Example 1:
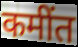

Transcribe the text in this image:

कमींत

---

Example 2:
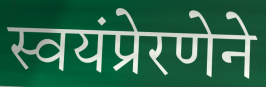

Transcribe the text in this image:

स्वयंप्रेरणेने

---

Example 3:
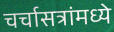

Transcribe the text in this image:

चर्चासत्रांमध्ये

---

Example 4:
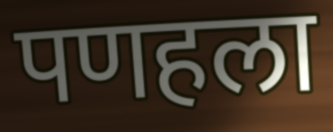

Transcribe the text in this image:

पणहला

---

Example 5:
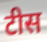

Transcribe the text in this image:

टीस